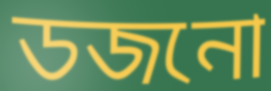
ডজনো